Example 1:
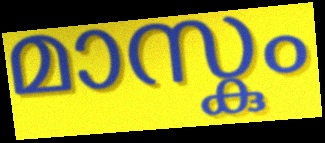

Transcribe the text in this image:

മാസ്കും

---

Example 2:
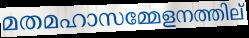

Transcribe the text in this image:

മതമഹാസമ്മേളനത്തില്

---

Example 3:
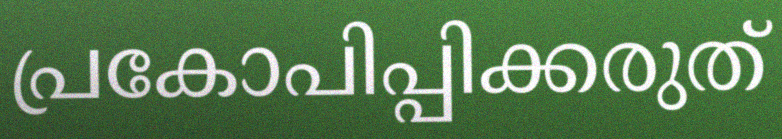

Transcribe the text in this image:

പ്രകോപിപ്പിക്കരുത്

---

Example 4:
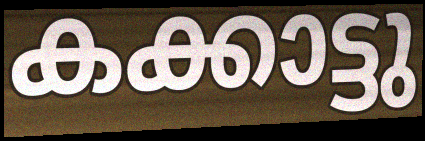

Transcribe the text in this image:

കക്കാട്ടു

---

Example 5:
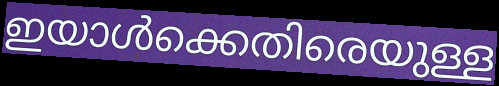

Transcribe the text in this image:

ഇയാൾക്കെതിരെയുള്ള